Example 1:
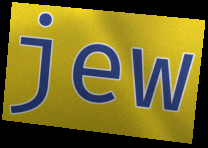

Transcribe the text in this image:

jew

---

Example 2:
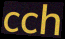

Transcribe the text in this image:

cch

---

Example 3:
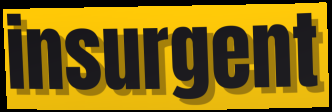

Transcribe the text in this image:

insurgent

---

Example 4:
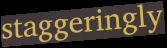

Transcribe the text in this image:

staggeringly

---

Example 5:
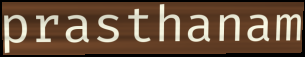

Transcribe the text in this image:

prasthanam